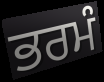
ਭਰਮੰ